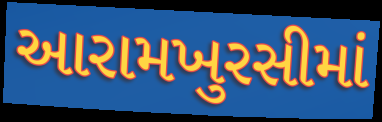
આરામખુરસીમાં